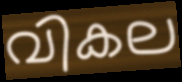
വികല